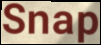
Snap